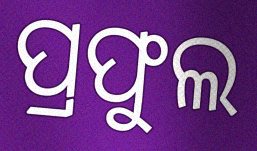
ପ୍ରଫୁଲ